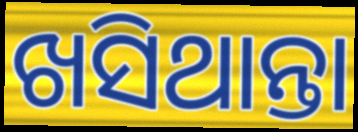
ଖସିଥାନ୍ତା